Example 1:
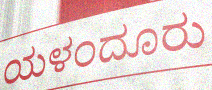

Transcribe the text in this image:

ಯಳಂದೂರು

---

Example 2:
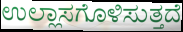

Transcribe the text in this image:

ಉಲ್ಲಾಸಗೊಳಿಸುತ್ತದೆ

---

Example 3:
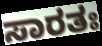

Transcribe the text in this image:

ಸಾರತಃ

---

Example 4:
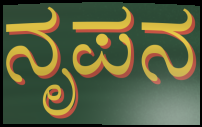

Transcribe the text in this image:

ನೃಪನ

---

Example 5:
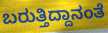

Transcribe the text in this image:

ಬರುತ್ತಿದ್ದಾನಂತೆ